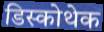
डिस्कोथेक